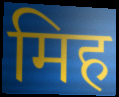
मिह